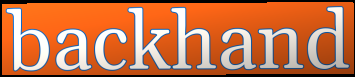
backhand